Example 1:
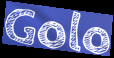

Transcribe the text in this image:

Golo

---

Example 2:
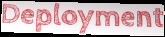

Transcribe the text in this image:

Deployment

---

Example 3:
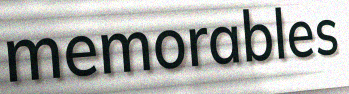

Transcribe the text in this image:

memorables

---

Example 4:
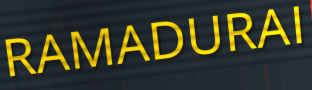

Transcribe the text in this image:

RAMADURAI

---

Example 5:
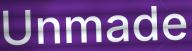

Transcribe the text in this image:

Unmade